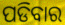
ପଡିବାର